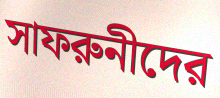
সাফরুনীদের